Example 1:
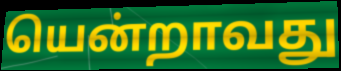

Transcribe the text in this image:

யென்றாவது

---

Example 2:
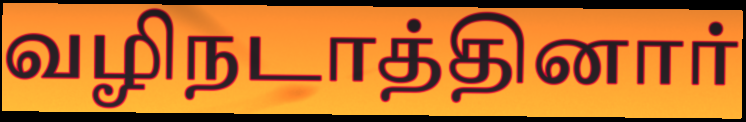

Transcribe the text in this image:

வழிநடாத்தினார்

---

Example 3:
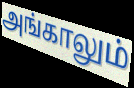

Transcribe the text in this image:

அங்காலும்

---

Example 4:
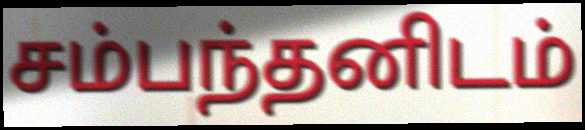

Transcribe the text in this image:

சம்பந்தனிடம்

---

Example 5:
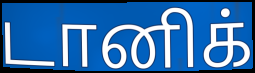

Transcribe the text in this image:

டானிக்